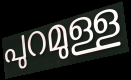
പുറമുള്ള